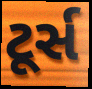
ટૂર્સ